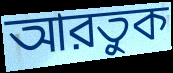
আরতুক